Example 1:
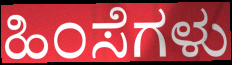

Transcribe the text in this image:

ಹಿಂಸೆಗಳು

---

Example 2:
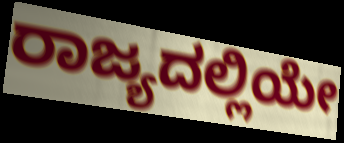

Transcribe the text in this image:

ರಾಜ್ಯದಲ್ಲಿಯೇ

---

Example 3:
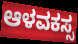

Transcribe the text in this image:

ಆಳವಕಸ್ಸ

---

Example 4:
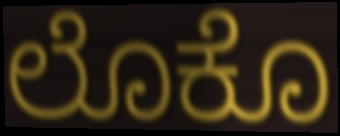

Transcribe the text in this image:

ಲೊಕೊ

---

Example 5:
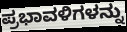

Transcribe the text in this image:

ಪ್ರಭಾವಳಿಗಳನ್ನು